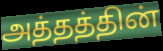
அத்தத்தின்